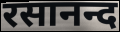
रसानन्द